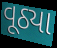
વૂઠ્યા